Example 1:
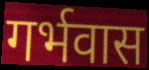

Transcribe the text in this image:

गर्भवास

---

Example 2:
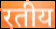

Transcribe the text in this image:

रतीय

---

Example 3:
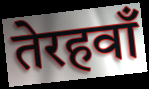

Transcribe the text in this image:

तेरहवाँ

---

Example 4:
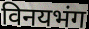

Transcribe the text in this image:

विनयभंग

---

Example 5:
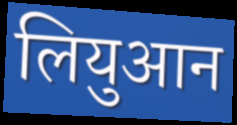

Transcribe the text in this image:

लियुआन